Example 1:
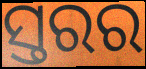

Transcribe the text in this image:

ସ୍ତରର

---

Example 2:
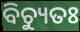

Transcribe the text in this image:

ବିଚ୍ୟୁତଃ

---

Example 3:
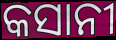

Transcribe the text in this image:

କସାନୀ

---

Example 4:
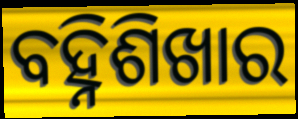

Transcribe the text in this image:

ବହ୍ନିଶିଖାର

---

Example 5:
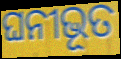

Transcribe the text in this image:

ଘନୀଭୂତ